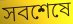
সবশেষে